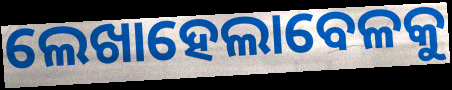
ଲେଖାହେଲାବେଳକୁ